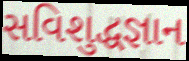
સવિશુદ્ધજ્ઞાન